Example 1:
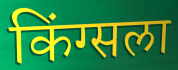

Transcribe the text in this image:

किंग्सला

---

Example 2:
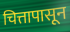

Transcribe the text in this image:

चित्तापासून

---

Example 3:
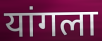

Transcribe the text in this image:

यांगला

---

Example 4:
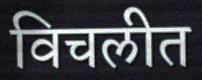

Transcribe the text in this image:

विचलीत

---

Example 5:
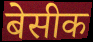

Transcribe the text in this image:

बेसीक